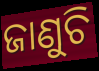
ଜାଣୁଚି